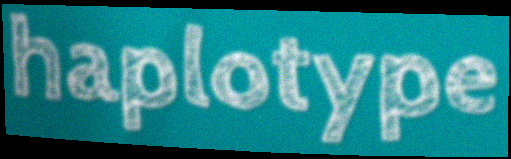
haplotype